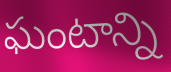
ఘంటాన్ని